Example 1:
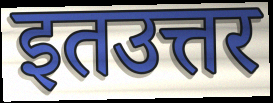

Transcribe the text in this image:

इतउत्तर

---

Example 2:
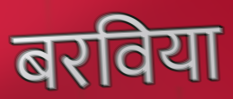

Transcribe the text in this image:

बरविया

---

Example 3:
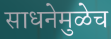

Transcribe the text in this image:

साधनेमुळेच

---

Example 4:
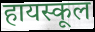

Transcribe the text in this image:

हायस्कूल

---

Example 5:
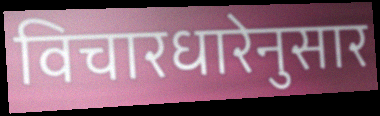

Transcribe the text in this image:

विचारधारेनुसार